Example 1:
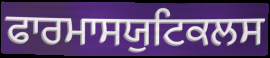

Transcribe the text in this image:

ਫਾਰਮਾਸਯੁਟਿਕਲਸ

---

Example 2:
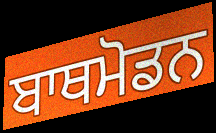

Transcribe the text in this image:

ਬਾਥਮੋਡਨ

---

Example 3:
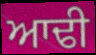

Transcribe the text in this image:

ਆਢੀ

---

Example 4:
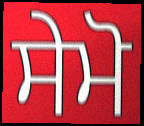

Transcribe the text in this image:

ਸੇਮੋ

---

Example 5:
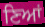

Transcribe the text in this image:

ਣਿਆਂ